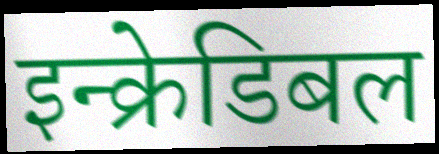
इन्क्रेडिबल